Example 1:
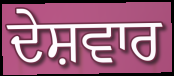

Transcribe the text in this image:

ਦੇਸ਼ਵਾਰ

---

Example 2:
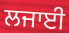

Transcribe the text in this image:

ਲਜਾਈ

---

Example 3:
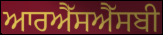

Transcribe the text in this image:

ਆਰਐੱਸਐੱਸਬੀ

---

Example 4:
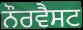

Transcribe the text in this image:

ਨੌਰਵੈਸਟ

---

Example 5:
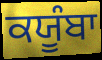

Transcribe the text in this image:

ਕਯੂੰਬਾ